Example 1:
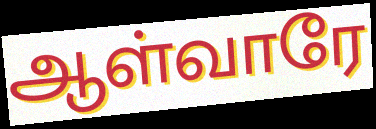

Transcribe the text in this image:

ஆள்வாரே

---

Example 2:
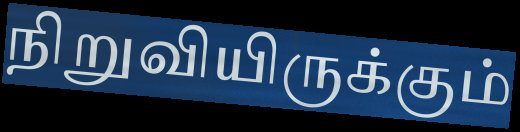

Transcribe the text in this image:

நிறுவியிருக்கும்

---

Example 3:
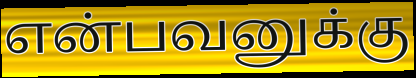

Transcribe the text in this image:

என்பவனுக்கு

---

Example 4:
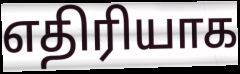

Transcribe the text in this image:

எதிரியாக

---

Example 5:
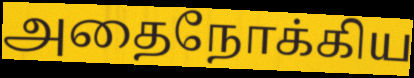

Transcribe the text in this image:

அதைநோக்கிய